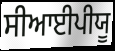
ਸੀਆਈਪੀਯੂ